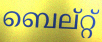
ബെല്റ്റ്